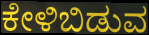
ಕೇಳಿಬಿಡುವ